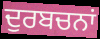
ਦੁਰਬਚਨਾਂ